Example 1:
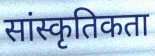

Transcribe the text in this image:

सांस्कृतिकता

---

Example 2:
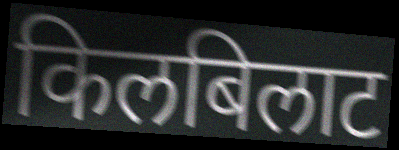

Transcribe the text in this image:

किलबिलाट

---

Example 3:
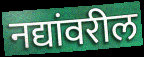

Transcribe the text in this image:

नद्यांवरील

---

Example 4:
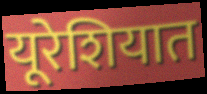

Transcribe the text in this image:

यूरेशियात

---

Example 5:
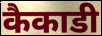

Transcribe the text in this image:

कैकाडी